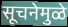
सूचनेमुळे